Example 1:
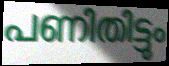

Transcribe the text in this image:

പണിതിട്ടും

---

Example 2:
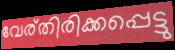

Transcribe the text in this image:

വേര്തിരിക്കപ്പെട്ടു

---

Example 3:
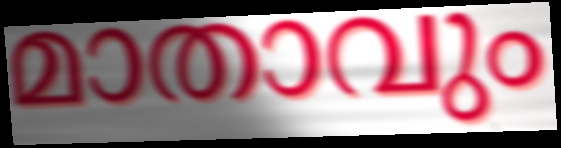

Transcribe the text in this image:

മാതാവും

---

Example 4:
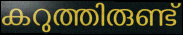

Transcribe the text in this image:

കറുത്തിരുണ്ട്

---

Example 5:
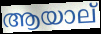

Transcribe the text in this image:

ആയാല്